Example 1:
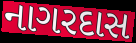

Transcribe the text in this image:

નાગરદાસ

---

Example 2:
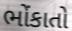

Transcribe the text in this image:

ભોંકાતો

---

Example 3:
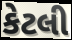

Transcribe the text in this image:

કેટલી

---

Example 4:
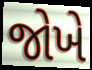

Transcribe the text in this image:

જોખે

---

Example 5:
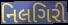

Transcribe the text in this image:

નિલગિરી